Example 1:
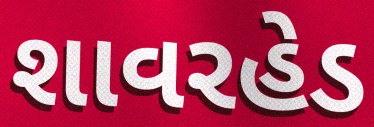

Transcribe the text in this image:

શાવરહેડ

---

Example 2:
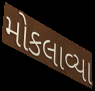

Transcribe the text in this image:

મોકલાવ્યા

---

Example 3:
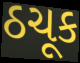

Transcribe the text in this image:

ઠચૂક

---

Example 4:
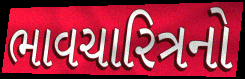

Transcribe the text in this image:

ભાવચારિત્રનો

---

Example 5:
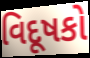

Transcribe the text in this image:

વિદૂષકો